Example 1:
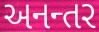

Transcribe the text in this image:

અનન્તર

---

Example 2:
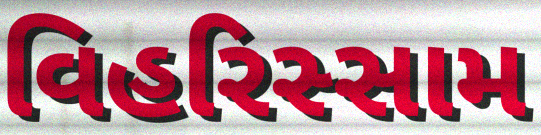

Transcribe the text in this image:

વિહરિસ્સામ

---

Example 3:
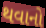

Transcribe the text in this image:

થવાનો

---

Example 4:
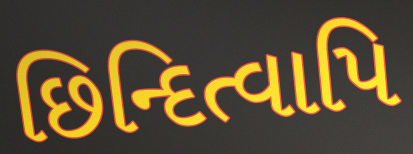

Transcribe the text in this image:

છિન્દિત્વાપિ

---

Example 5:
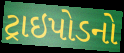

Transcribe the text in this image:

ટ્રાઇપોડનો